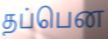
தப்பென